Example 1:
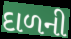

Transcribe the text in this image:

દાળની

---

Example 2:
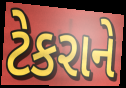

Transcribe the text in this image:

ટેકરાને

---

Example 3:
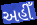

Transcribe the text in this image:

અહીઁ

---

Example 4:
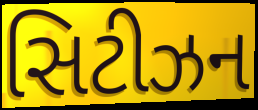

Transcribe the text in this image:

સિટીઝન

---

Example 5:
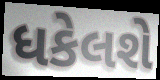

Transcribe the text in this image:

ધકેલશે